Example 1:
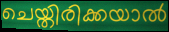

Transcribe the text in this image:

ചെയ്തിരിക്കയാൽ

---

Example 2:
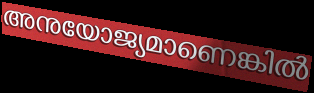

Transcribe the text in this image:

അനുയോജ്യമാണെങ്കിൽ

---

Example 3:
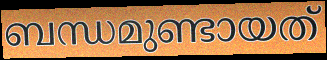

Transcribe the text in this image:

ബന്ധമുണ്ടായത്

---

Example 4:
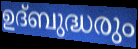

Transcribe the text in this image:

ഉദ്ബുദ്ധരും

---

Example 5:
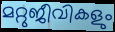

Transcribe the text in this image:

മറ്റുജീവികളും